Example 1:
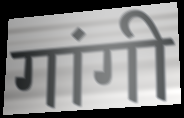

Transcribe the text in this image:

गांगी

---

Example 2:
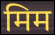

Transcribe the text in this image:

मिम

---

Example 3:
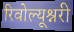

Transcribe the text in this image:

रिवोल्यूश्नरी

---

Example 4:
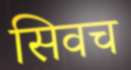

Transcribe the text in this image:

सिवच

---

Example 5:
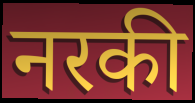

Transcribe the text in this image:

नरकी